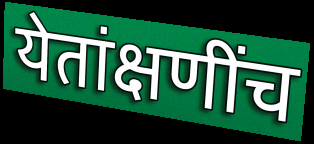
येतांक्षणींच